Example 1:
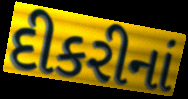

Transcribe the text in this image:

દીકરીનાં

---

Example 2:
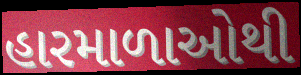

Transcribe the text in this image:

હારમાળાઓથી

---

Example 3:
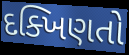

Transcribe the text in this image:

દક્ખિણતો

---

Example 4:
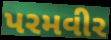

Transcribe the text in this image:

પરમવીર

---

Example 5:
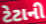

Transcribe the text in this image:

ટેટાની